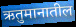
ऋतुमानातील